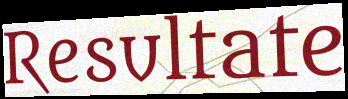
Resultate